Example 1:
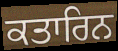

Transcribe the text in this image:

ਕਤਾਰਿਨ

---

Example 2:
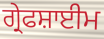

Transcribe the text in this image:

ਗ੍ਰੇਫਸ਼ਾਈਮ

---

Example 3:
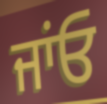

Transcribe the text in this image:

ਜਾਂਓ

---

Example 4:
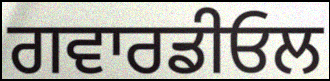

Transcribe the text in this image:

ਗਵਾਰਡੀਓਲ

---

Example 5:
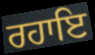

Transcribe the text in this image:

ਰਹਾਇ